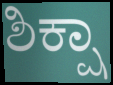
ಶಿಕ್ಷಾ